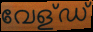
വേള്ഡ്